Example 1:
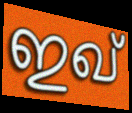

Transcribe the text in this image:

ഇഖ്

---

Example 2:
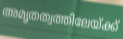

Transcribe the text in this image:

അമൃതത്വത്തിലേയ്ക്ക്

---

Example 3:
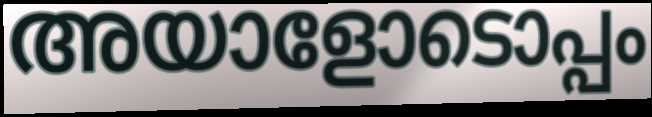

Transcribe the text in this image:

അയാളോടൊപ്പം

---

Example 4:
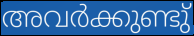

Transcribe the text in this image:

അവർക്കുണ്ടു്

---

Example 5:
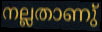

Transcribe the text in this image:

നല്ലതാണു്